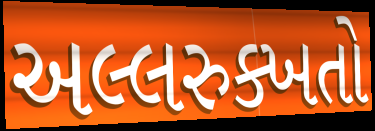
અલ્લરુક્ખતો